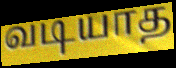
வடியாத